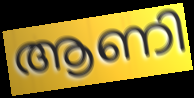
ആണി